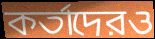
কর্তাদেরও